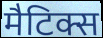
मैटिक्स